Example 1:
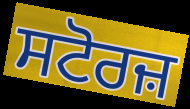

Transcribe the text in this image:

ਸਟੋਰਜ਼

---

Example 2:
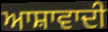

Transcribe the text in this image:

ਆਸ਼ਾਵਾਦੀ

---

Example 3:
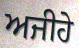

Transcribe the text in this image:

ਅਜੀਹੇ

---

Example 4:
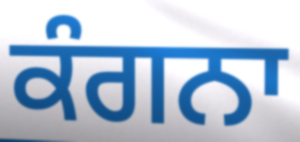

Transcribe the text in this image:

ਕੰਗਨਾ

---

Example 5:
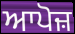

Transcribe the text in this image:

ਆਪੋਜ਼